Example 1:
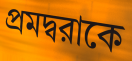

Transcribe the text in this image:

প্রমদ্বরাকে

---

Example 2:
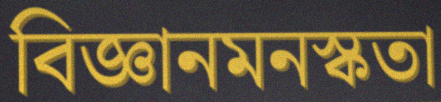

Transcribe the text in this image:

বিজ্ঞানমনস্কতা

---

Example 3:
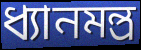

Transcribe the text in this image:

ধ্যানমন্ত্র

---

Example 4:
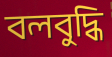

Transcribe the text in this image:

বলবুদ্ধি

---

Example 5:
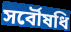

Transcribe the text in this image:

সর্বৌষধি